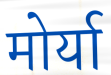
मोर्या